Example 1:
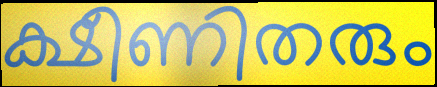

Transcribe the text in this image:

ക്ഷീണിതരും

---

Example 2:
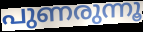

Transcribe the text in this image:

പുണരുന്നൂ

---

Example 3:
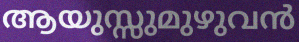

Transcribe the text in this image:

ആയുസ്സുമുഴുവൻ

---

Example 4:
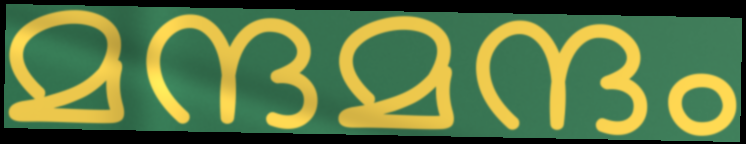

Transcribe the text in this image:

മന്ദമന്ദം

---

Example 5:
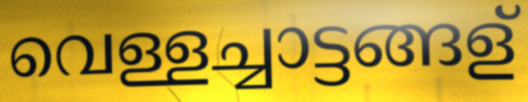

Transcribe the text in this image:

വെള്ളച്ചാട്ടങ്ങള്